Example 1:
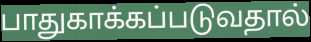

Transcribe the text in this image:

பாதுகாக்கப்படுவதால்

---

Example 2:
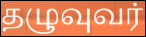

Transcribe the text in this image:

தழுவுவர்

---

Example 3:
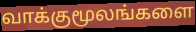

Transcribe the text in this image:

வாக்குமூலங்களை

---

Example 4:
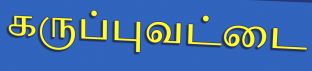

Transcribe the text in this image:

கருப்புவட்டை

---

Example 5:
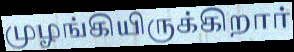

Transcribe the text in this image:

முழங்கியிருக்கிறார்